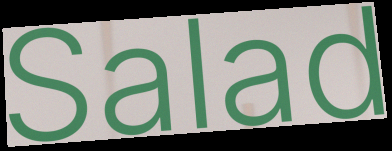
Salad